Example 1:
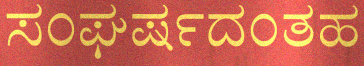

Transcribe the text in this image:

ಸಂಘರ್ಷದಂತಹ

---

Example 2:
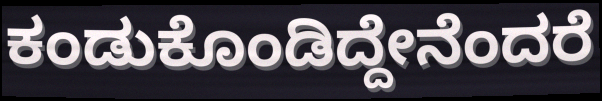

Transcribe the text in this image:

ಕಂಡುಕೊಂಡಿದ್ದೇನೆಂದರೆ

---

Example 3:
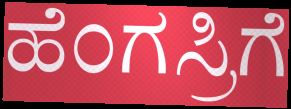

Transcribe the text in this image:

ಹೆಂಗಸ್ರಿಗೆ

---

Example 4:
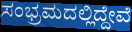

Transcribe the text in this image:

ಸಂಭ್ರಮದಲ್ಲಿದ್ದೇವೆ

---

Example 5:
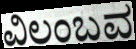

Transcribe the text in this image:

ವಿಲಂಬವ